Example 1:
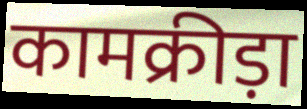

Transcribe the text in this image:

कामक्रीड़ा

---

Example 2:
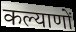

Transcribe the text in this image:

कल्याणों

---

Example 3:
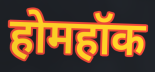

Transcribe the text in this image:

होमहॉक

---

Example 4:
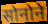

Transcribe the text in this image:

सोनोने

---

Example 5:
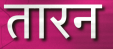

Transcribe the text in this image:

तारन